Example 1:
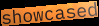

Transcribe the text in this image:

showcased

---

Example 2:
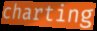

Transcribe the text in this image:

charting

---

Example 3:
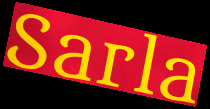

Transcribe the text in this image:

Sarla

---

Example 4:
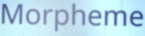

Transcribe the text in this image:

Morpheme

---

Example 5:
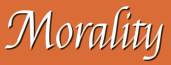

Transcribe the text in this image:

Morality